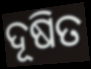
ଦୂଷିତ